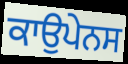
ਕਾਉਪੇਨਸ